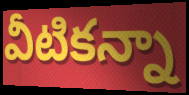
వీటికన్నా